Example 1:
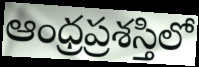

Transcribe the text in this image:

ఆంధ్రప్రశస్తిలో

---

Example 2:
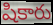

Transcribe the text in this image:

షికారు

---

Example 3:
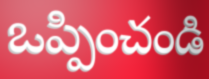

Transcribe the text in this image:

ఒప్పించండి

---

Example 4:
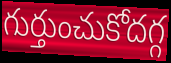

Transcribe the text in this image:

గుర్తుంచుకోదగ్గ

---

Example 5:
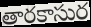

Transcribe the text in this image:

తారకాసుర